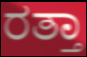
ರತ್ತಾ